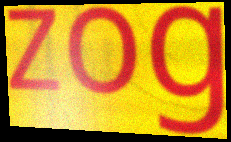
zog